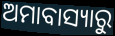
ଅମାବାସ୍ୟାରୁ